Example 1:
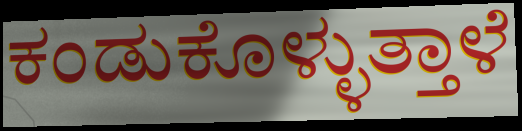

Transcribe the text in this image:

ಕಂಡುಕೊಳ್ಳುತ್ತಾಳೆ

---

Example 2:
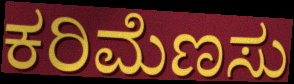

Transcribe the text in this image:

ಕರಿಮೆಣಸು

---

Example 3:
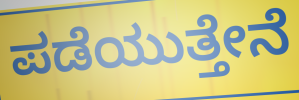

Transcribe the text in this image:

ಪಡೆಯುತ್ತೇನೆ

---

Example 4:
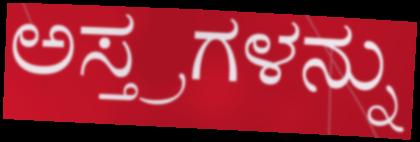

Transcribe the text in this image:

ಅಸ್ತ್ರಗಳನ್ನು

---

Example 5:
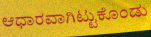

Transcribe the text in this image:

ಆಧಾರವಾಗಿಟ್ಟುಕೊಂಡು